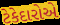
ટેકેદારોએ